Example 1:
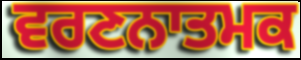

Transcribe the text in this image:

ਵਰਣਨਾਤਮਕ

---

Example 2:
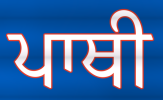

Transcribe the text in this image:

ਪਾਥੀ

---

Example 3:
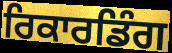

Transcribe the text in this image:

ਰਿਕਾਰਡਿੰਗ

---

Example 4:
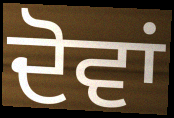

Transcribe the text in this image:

ਦੋਵਾਂ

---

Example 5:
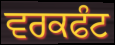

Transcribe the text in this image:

ਵਰਕਫੰਟ